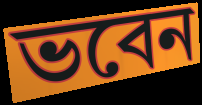
ভবেন